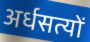
अर्धसत्यों